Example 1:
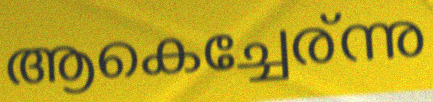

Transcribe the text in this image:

ആകെച്ചേര്ന്നു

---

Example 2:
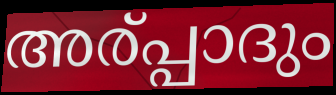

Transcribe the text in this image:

അര്പ്പാദും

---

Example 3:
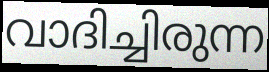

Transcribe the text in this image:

വാദിച്ചിരുന്ന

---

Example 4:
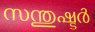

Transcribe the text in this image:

സന്തുഷ്ടർ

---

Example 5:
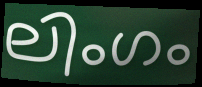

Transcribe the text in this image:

ലിംഗം